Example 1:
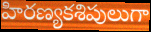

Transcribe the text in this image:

హిరణ్యకశిపులుగా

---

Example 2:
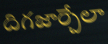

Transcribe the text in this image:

దిగజార్చేలా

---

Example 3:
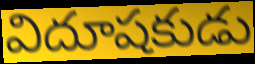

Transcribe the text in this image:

విదూషకుడు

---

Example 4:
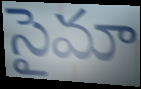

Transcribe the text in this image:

సైమా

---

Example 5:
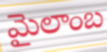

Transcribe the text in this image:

మైలాంబ